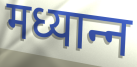
मध्यान्न